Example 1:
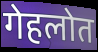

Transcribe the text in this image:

गेहलोत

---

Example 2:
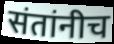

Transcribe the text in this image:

संतांनीच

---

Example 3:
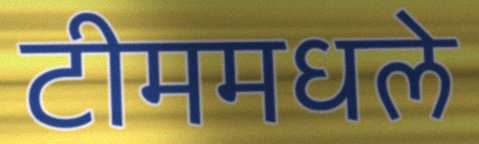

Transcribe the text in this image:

टीममधले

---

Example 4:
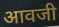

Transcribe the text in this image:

आवजी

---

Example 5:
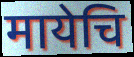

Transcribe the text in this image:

मायेचि